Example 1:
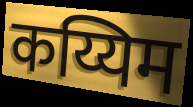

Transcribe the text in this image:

कय्यिम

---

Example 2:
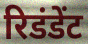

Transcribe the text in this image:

रिडंडेंट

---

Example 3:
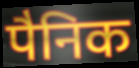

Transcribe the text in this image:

पैनिक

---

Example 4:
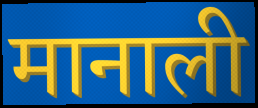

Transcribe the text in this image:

मानाली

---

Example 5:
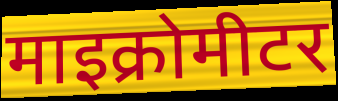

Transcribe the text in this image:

माइक्रोमीटर